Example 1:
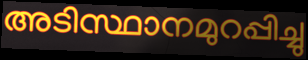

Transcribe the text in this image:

അടിസ്ഥാനമുറപ്പിച്ചു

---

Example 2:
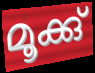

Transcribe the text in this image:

മൂക്കു്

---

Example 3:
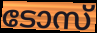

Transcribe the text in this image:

ടോസ്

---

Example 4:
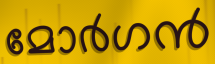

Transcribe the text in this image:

മോർഗൻ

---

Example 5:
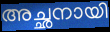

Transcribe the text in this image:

അച്ഛനായി